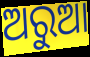
ଅରୁଆ